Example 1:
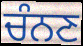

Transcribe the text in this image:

ਚੰਨਣ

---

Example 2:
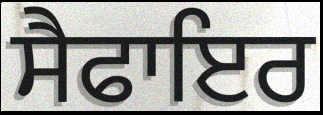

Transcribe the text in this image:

ਸੈਫਾਇਰ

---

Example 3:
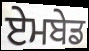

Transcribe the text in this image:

ਏਮਬੇਡ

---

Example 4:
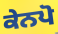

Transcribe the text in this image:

ਕੇਨਪੋ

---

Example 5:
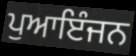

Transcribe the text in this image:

ਪੁਆਇੰਜਨ